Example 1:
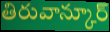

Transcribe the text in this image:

తిరువాన్కూర్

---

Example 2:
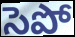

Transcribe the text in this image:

సెపో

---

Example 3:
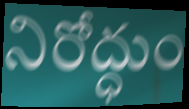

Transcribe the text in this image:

నిరోద్ధుం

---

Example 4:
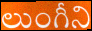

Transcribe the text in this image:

లుంగీని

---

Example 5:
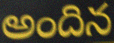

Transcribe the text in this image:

అందిన